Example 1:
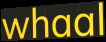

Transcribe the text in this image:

whaal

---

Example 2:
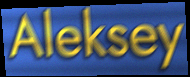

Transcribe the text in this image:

Aleksey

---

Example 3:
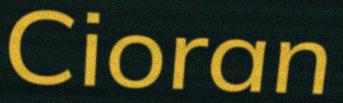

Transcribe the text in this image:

Cioran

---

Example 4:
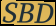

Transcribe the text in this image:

SBD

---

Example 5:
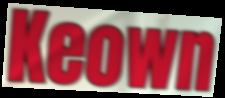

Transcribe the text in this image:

Keown